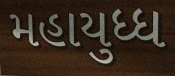
મહાયુધ્ધ